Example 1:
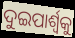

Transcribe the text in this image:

ଦୁଇପାର୍ଶ୍ବକୁ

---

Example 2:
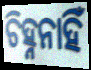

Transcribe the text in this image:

ଚିହ୍ନନାହିଁ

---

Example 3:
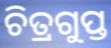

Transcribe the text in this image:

ଚିତ୍ରଗୁପ୍ତ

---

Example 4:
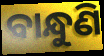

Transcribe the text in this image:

ବାନ୍ଧୁଣି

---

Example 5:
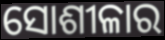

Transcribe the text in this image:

ସୋଶୀଳାର